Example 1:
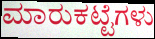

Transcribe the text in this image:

ಮಾರುಕಟ್ಟೆಗಳು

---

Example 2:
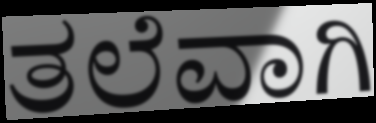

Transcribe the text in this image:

ತಲೆವಾಗಿ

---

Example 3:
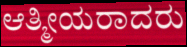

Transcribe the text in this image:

ಆತ್ಮೀಯರಾದರು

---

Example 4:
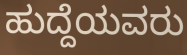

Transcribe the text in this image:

ಹುದ್ದೆಯವರು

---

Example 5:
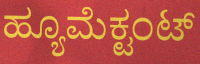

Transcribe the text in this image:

ಹ್ಯೂಮೆಕ್ಟಂಟ್